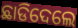
ଛାଡିଦେଲେ